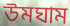
উমঘাম